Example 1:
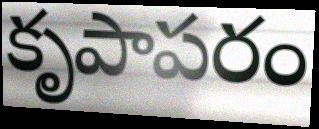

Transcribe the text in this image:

కృపాపరం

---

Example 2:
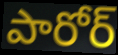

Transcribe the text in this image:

పారోర్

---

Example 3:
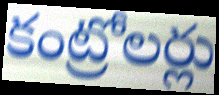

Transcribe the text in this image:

కంట్రోలర్లు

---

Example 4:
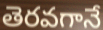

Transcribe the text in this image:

తెరవగానే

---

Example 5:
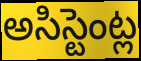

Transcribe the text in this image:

అసిస్టెంట్ల